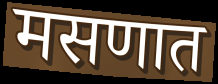
मसणात